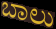
ಬಾಲು